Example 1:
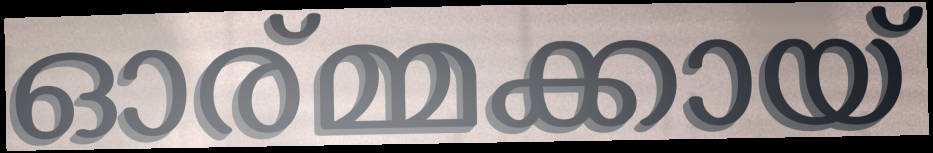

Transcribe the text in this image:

ഓര്മ്മക്കായ്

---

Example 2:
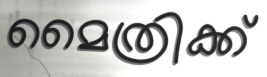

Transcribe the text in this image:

മൈത്രിക്ക്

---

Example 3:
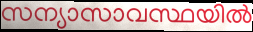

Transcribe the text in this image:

സന്യാസാവസ്ഥയിൽ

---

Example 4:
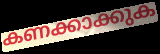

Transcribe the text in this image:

കണക്കാക്കുക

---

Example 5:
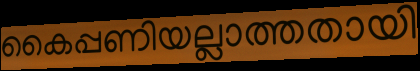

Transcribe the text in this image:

കൈപ്പണിയല്ലാത്തതായി